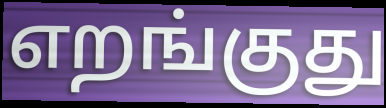
எறங்குது